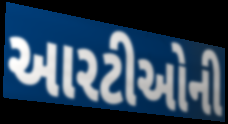
આરટીઓની